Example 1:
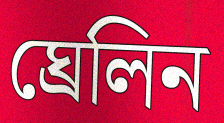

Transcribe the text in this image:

ঘ্ৰেলিন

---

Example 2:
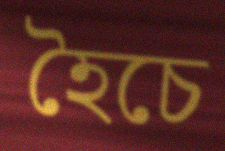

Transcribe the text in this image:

হৈচে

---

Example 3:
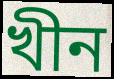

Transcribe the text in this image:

খীন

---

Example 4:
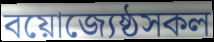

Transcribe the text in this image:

বয়োজ্যেষ্ঠসকল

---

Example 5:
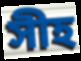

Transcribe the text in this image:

সীহ